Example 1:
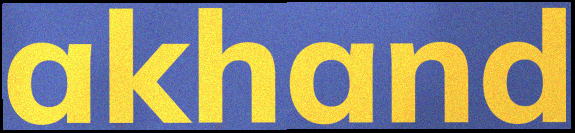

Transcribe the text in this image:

akhand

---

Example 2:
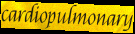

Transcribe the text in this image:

cardiopulmonary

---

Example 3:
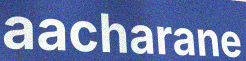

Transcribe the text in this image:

aacharane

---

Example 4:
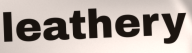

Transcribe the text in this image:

leathery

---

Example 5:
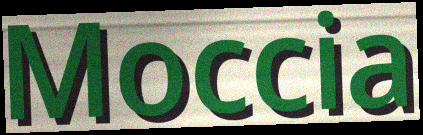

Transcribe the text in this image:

Moccia